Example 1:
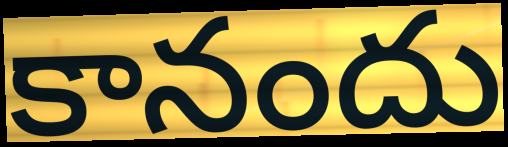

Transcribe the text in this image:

కానందు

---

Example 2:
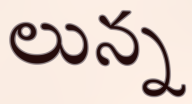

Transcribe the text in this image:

లున్న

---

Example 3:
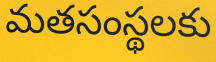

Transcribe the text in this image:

మతసంస్థలకు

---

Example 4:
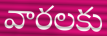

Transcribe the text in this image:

వారలకు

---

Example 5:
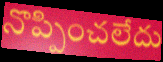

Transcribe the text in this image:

నొప్పించలేదు